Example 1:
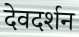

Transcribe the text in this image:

देवदर्शन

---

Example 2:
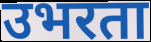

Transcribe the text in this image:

उभरता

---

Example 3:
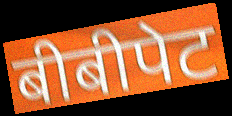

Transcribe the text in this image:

बीबीपेट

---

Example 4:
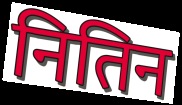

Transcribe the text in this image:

नितिन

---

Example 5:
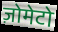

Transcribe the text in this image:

ज़ोमेटो